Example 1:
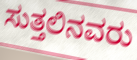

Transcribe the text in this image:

ಸುತ್ತಲಿನವರು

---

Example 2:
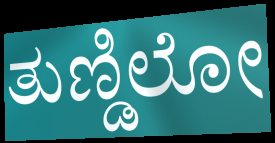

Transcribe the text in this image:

ತುಣ್ಡಿಲೋ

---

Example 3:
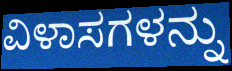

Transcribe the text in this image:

ವಿಳಾಸಗಳನ್ನು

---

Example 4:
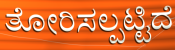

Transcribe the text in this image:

ತೋರಿಸಲ್ಪಟ್ಟಿದೆ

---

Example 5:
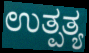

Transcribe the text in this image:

ಉತ್ಪತ್ಯ